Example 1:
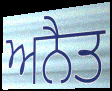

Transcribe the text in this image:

ਅਨੈਤ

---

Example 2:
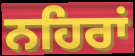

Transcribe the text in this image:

ਨਹਿਰਾਂ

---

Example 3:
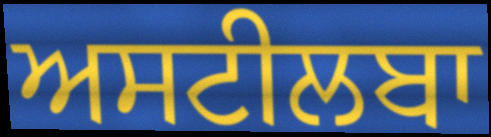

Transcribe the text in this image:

ਅਸਟੀਲਬਾ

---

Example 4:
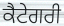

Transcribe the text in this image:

ਕੈਟੇਗਰੀ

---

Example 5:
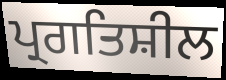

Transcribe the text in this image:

ਪ੍ਰਗਤਿਸ਼ੀਲ